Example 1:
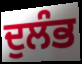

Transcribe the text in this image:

ਦੁਲੰਭ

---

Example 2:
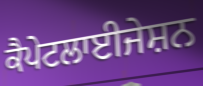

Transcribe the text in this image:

ਕੈਪੇਟਲਾਈਜੇਸ਼ਨ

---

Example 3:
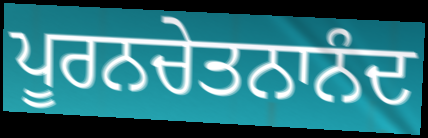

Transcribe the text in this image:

ਪੂਰਨਚੇਤਨਾਨੰਦ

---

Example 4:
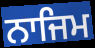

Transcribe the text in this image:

ਨਾਜਿਮ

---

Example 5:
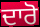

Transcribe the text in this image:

ਦਾਰੋ